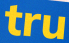
tru